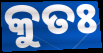
କୁତଃ